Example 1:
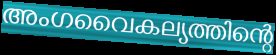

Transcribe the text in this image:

അംഗവൈകല്യത്തിന്റെ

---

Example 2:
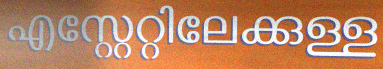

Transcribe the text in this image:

എസ്റ്റേറ്റിലേക്കുള്ള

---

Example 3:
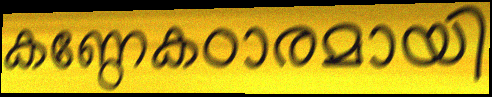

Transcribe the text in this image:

കണ്ഠേകഠാരമായി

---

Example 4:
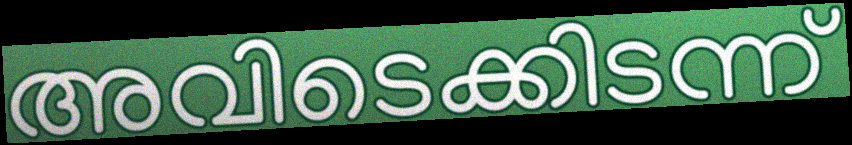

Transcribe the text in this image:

അവിടെക്കിടന്ന്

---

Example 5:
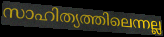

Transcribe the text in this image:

സാഹിത്യത്തിലെന്നല്ല